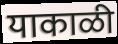
याकाळी